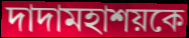
দাদামহাশয়কে